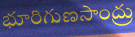
భూరిగుణసాంద్రు